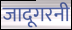
जादूगरनी